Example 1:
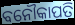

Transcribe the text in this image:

ବନୌକାପତି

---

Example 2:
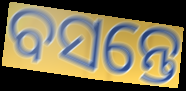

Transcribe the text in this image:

ବସନ୍ତେ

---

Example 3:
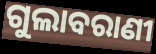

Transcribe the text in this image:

ଗୁଲାବରାଣୀ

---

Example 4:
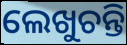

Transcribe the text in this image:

ଲେଖୁଚନ୍ତି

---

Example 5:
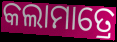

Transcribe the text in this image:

କଲାମାତ୍ରେ